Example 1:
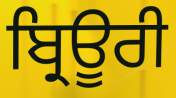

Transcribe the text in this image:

ਬ੍ਰਿਊਰੀ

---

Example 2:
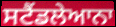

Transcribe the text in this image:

ਸਟੈਂਡਲੇਆਨਾ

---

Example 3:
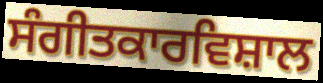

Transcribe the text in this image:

ਸੰਗੀਤਕਾਰਵਿਸ਼ਾਲ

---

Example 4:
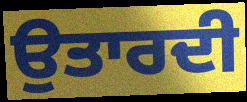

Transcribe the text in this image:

ਉਤਾਰਦੀ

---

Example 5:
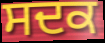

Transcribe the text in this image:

ਸਦਕ